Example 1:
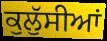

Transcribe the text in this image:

ਕੁਲੁੱਸੀਆਂ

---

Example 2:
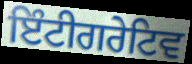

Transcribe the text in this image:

ਇੰਟੀਗਰੇਟਿਵ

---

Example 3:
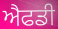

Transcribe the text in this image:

ਐਫਡੀ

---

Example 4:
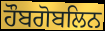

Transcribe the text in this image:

ਹੌਬਗੋਬਲਿਨ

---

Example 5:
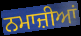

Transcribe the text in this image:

ਨਮਾਜ਼ੀਆਂ